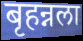
बृहन्नला